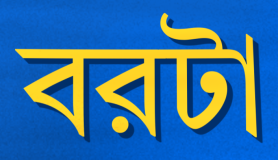
বরটা